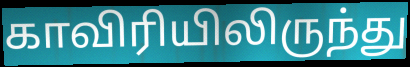
காவிரியிலிருந்து